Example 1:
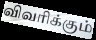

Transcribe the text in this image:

விவரிக்கும்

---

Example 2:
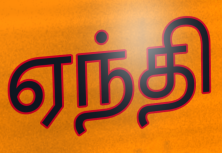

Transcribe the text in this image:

ஏந்தி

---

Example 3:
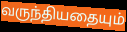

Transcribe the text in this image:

வருந்தியதையும்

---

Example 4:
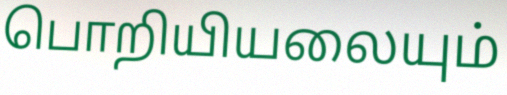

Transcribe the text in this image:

பொறியியலையும்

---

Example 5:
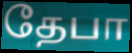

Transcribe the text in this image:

தேபா